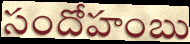
సందోహంబు